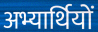
अभ्‍यार्थियों